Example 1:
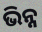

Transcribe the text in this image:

ଭିନ୍ନ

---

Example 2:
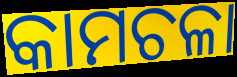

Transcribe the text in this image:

କାମଚଳା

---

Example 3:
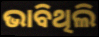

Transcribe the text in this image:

ଭାବିଥିଲି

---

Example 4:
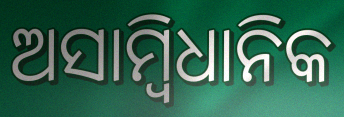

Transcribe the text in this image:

ଅସାମ୍ବିଧାନିକ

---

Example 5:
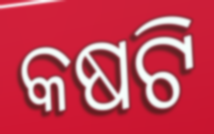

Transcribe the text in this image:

କଷଟି